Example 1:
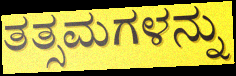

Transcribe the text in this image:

ತತ್ಸಮಗಳನ್ನು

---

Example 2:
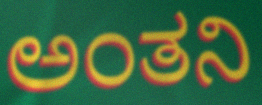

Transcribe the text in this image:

ಅಂತನಿ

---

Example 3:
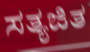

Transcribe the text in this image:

ಸತ್ಯಜಿತ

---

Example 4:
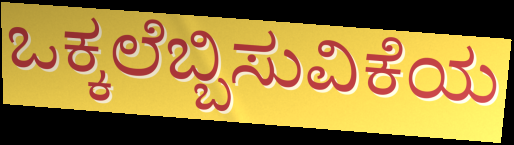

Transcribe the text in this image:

ಒಕ್ಕಲೆಬ್ಬಿಸುವಿಕೆಯ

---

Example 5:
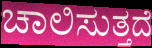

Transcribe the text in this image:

ಚಾಲಿಸುತ್ತದೆ